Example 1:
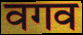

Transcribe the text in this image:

वगव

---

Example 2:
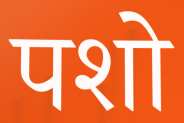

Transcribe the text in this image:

पशो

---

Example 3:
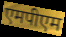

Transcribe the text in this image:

एमपीएम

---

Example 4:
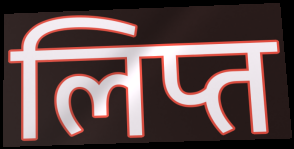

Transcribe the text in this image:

लिप्त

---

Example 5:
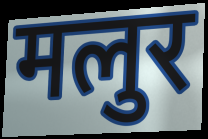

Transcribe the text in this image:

मलुर